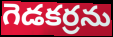
గెడకర్రను